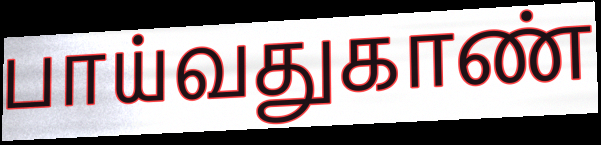
பாய்வதுகாண்